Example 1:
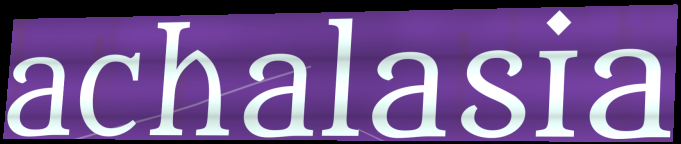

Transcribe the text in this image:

achalasia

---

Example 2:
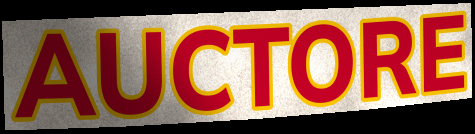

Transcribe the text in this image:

AUCTORE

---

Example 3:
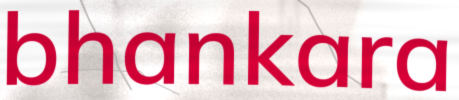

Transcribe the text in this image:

bhankara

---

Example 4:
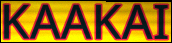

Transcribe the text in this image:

KAAKAI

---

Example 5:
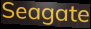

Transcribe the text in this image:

Seagate